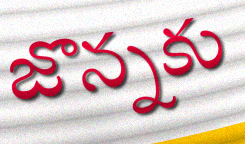
జొన్నకు